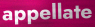
appellate